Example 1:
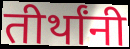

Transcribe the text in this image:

तीर्थांनी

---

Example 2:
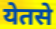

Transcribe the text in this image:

येतसे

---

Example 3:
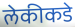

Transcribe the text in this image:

लेकीकडे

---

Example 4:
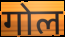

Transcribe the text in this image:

गोल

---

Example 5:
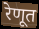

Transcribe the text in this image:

रेणूत